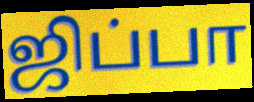
ஜிப்பா